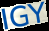
IGY